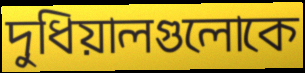
দুধিয়ালগুলোকে